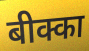
बीक्का